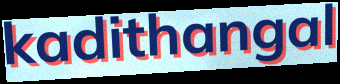
kadithangal